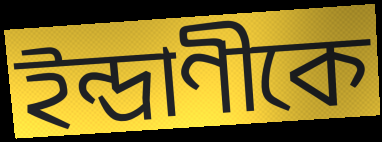
ইন্দ্রাণীকে